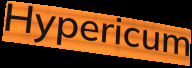
Hypericum